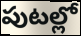
పుటల్లో